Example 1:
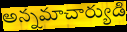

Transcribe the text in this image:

అన్నమాచార్యుడి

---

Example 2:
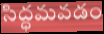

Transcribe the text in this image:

సిద్ధమవడం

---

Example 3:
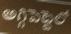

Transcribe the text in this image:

అగ్గిపెట్టెలో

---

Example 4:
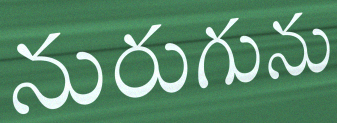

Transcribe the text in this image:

నురుగును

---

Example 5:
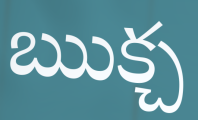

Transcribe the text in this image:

ఋక్చ